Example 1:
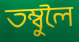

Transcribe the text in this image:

তম্বুলৈ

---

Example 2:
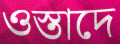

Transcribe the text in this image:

ওস্তাদে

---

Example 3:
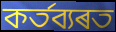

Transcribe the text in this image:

কৰ্তব্যৰত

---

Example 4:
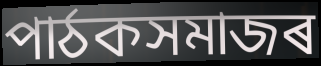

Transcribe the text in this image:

পাঠকসমাজৰ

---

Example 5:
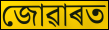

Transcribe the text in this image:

জোৱাৰত